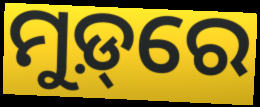
ମୁଡ଼୍‌ରେ